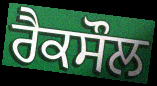
ਰੈਕਸੌਲ